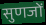
सुणजों